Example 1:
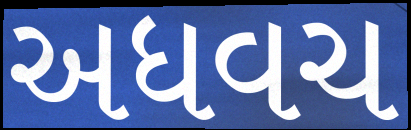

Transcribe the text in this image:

અધવચ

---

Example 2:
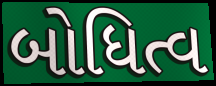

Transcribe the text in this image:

બોધિત્વ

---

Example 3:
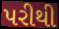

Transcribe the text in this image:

પરીથી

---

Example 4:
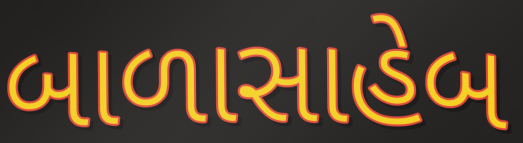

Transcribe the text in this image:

બાળાસાહેબ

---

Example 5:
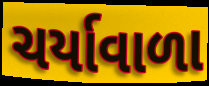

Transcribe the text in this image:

ચર્યાવાળા